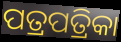
ପତ୍ରପତ୍ରିକା